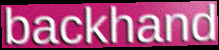
backhand